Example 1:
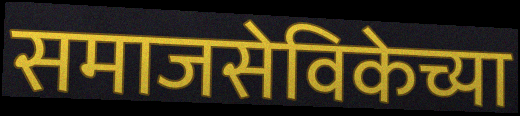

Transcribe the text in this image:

समाजसेविकेच्या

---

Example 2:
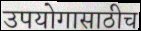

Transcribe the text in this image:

उपयोगासाठीच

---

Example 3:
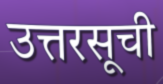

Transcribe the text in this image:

उत्तरसूची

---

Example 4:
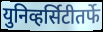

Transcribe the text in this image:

युनिव्हर्सिटीतर्फे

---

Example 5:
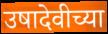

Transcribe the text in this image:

उषादेवीच्या